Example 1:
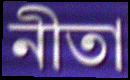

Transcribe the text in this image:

নীতা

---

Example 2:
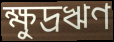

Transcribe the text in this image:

ক্ষুদ্রঋণ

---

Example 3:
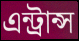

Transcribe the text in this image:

এন্ট্রান্স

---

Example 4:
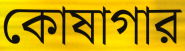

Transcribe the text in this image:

কোষাগার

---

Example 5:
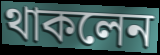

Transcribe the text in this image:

থাকলেন